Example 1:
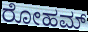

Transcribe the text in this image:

ರೋಹಮ್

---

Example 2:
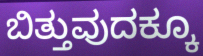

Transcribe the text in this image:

ಬಿತ್ತುವುದಕ್ಕೂ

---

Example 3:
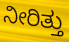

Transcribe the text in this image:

ನೀರಿತ್ತು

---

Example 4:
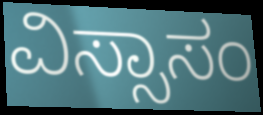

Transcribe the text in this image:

ವಿಸ್ಸಾಸಂ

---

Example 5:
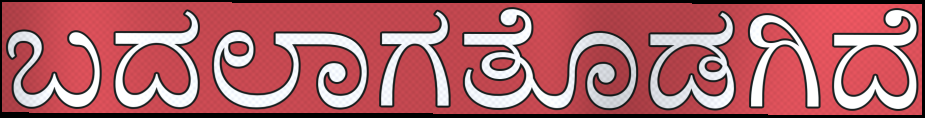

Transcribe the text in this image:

ಬದಲಾಗತೊಡಗಿದೆ